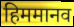
हिममानव